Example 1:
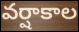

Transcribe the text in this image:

వర్షాకాల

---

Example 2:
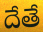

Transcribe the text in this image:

దేతే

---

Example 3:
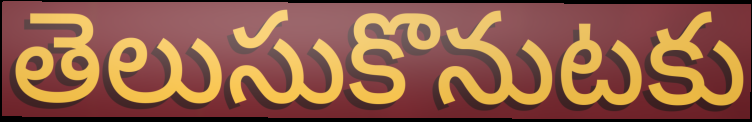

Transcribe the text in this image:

తెలుసుకొనుటకు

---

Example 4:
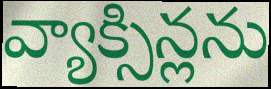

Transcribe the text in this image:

వ్యాక్సిన్లను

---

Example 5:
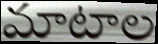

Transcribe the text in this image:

మాటాల